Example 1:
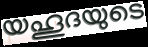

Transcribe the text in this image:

യഹൂദയുടെ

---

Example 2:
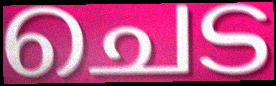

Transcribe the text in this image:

ചെട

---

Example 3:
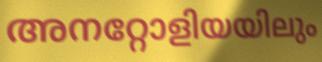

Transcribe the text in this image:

അനറ്റോളിയയിലും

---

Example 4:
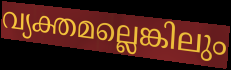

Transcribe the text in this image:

വ്യക്തമല്ലെങ്കിലും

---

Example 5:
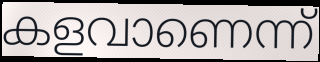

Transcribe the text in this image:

കളവാണെന്ന്